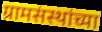
ग्रामसंस्थांच्या